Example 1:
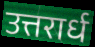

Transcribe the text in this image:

उत्तरार्ध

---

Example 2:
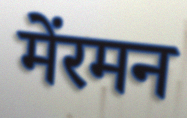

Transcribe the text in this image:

मेंरमन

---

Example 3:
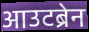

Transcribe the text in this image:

आउटब्रेन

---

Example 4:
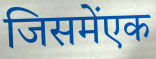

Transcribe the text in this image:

जिसमेंएक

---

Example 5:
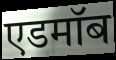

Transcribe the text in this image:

एडमॉब